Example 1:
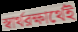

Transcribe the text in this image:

স্বার্থরক্ষার্থেই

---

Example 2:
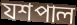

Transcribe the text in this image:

যশপাল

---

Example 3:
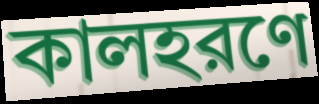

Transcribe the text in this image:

কালহরণে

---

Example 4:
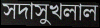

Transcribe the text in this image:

সদাসুখলাল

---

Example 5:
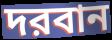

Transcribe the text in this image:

দরবান